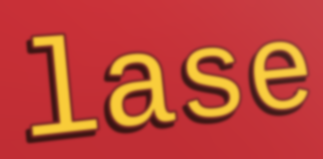
lase